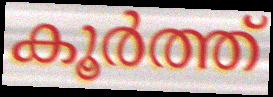
കൂർത്ത്